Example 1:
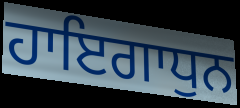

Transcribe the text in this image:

ਹਾਇਗਾਧੁਨ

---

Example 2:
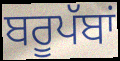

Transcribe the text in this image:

ਬਰੂਪੱਬਾਂ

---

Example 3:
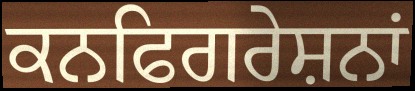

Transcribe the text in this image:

ਕਨਫਿਗਰੇਸ਼ਨਾਂ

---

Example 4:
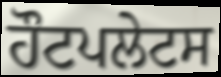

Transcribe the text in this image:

ਹੌਟਪਲੇਟਸ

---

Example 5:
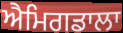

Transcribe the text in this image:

ਐਮਿਗਡਾਲਾ